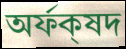
অর্ফক্‌ষদ